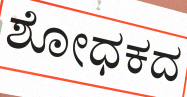
ಶೋಧಕದ